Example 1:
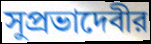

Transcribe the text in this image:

সুপ্রভাদেবীর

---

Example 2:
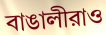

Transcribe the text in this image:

বাঙালীরাও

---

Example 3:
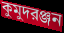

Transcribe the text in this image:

কুমুদরঞ্জন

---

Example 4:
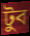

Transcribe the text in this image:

টুব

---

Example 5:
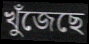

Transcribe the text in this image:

খুঁজেছে